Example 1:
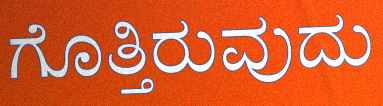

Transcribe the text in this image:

ಗೊತ್ತಿರುವುದು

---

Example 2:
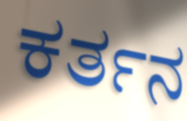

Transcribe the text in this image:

ಕರ್ತನ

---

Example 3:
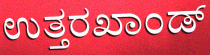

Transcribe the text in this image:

ಉತ್ತರಖಾಂಡ್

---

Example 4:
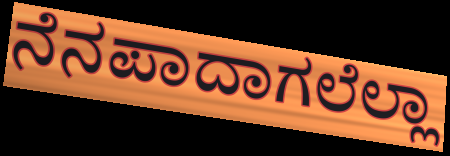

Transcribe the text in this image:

ನೆನಪಾದಾಗಲೆಲ್ಲಾ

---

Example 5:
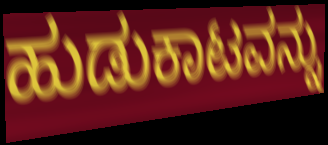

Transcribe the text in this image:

ಹುಡುಕಾಟವನ್ನು